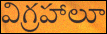
విగ్రహాలూ